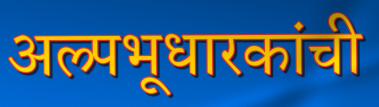
अल्पभूधारकांची